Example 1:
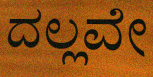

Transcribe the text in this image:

ದಲ್ಲವೇ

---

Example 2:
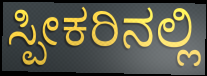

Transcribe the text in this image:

ಸ್ಪೀಕರಿನಲ್ಲಿ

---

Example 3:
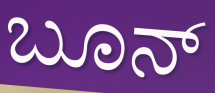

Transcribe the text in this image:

ಬೂನ್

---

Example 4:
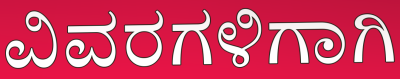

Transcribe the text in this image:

ವಿವರಗಳಿಗಾಗಿ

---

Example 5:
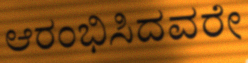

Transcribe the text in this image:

ಆರಂಭಿಸಿದವರೇ